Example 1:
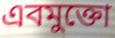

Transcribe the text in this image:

এবমুক্তো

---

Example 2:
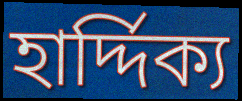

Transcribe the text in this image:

হার্দ্দিক্য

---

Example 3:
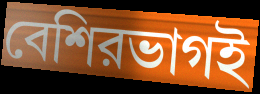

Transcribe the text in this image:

বেশিরভাগই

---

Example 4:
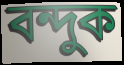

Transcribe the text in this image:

বন্দুক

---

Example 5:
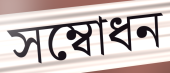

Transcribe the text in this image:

সম্বোধন